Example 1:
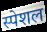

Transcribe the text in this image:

स्‍पेशल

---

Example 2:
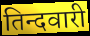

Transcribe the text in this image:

तिन्दवारी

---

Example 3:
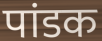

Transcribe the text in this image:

पांडक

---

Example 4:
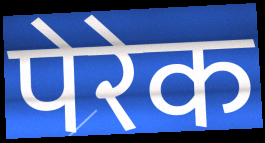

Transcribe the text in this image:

पेरेक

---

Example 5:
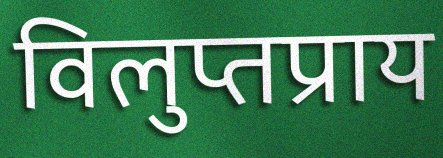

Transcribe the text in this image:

विलुप्तप्राय